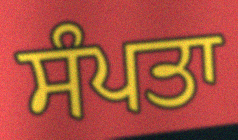
ਸੰਪਤਾ